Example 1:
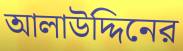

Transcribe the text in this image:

আলাউদ্দিনের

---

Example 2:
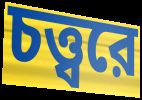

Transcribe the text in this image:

চত্ত্বরে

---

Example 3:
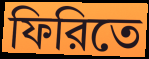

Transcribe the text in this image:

ফিরিতে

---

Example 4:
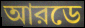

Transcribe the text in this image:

আরডে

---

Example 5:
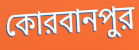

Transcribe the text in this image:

কোরবানপুর